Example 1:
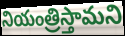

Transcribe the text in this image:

నియంత్రిస్తామని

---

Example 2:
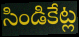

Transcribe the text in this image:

సిండికేట్ల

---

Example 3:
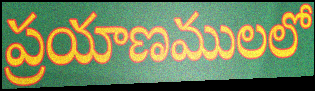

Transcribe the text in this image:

ప్రయాణములలో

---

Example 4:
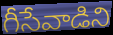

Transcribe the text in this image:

గీసేవాడిని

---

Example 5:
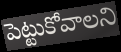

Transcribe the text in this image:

పెట్టుకోవాలని